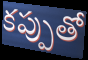
కప్పుతో